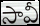
సావీ